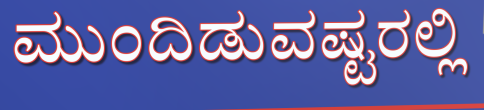
ಮುಂದಿಡುವಷ್ಟರಲ್ಲಿ